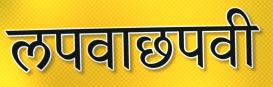
लपवाछपवी